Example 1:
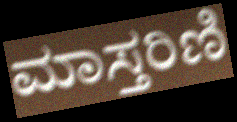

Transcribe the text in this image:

ಮಾಸ್ತರಿಣಿ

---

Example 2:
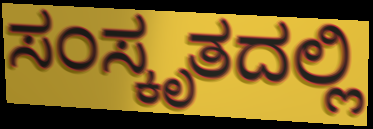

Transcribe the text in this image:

ಸಂಸ್ಕೃತದಲ್ಲಿ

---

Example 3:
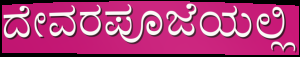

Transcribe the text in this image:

ದೇವರಪೂಜೆಯಲ್ಲಿ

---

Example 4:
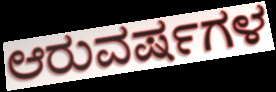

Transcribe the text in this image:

ಆರುವರ್ಷಗಳ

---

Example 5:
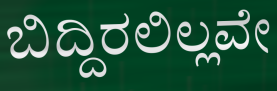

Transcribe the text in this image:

ಬಿದ್ದಿರಲಿಲ್ಲವೇ